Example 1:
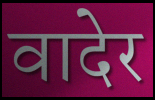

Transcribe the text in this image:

वादेर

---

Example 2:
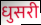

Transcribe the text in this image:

धुसरी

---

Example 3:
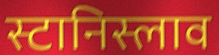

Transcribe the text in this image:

स्टानिस्लाव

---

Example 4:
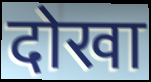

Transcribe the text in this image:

दोखा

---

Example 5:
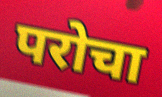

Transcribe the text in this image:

परोचा